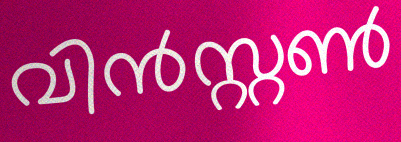
വിൻസ്റ്റൺ